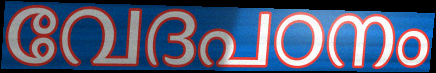
വേദപഠനം